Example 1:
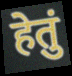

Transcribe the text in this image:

हेतुं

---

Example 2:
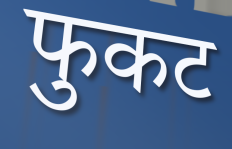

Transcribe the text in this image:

फुकट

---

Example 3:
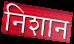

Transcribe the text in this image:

निशान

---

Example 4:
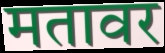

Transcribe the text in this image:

मतावर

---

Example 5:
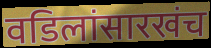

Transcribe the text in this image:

वडिलांसारखंच